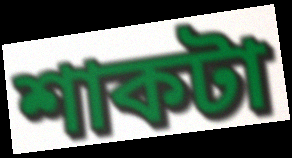
শাকটা